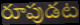
రూపుడట